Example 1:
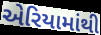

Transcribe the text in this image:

એરિયામાંથી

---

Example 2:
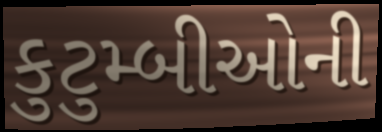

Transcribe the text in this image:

કુટુમ્બીઓની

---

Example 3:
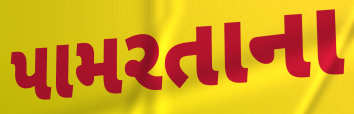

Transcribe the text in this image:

પામરતાના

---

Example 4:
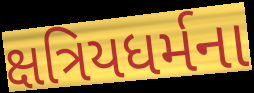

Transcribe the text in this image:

ક્ષત્રિયધર્મના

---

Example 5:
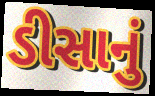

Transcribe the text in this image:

ડીસાનું